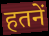
हतनें